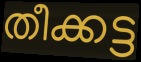
തീക്കട്ട